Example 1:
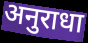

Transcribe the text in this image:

अनुराधा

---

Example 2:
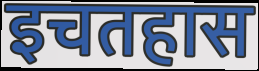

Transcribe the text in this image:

इचतहास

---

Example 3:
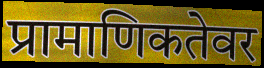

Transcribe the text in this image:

प्रामाणिकतेवर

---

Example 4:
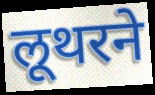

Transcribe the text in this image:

लूथरने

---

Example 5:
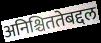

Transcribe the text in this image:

अनिश्चिततेबद्दल